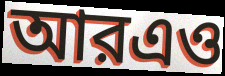
আরএও